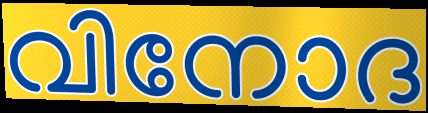
വിനോദ